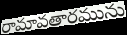
రామావతారమును